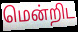
மென்றிட